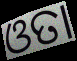
ଓତା